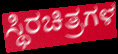
ಸ್ಥಿರಚಿತ್ರಗಳ